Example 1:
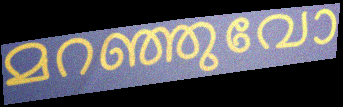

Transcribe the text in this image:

മറഞ്ഞുവോ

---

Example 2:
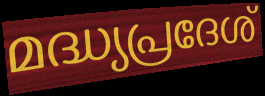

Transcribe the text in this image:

മദ്ധ്യപ്രദേശ്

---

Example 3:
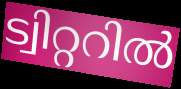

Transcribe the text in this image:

ട്വിറ്ററിൽ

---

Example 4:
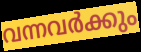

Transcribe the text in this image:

വന്നവർക്കും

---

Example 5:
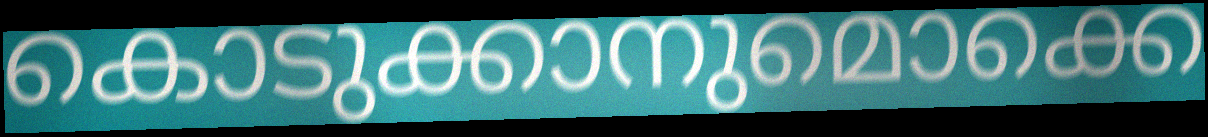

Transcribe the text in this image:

കൊടുക്കാനുമൊക്കെ